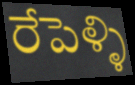
రేపెళ్ళి